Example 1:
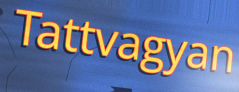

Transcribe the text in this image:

Tattvagyan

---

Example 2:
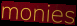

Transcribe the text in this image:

monies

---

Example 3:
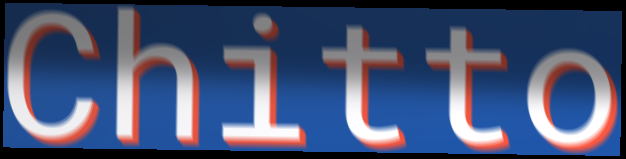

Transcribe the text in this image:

Chitto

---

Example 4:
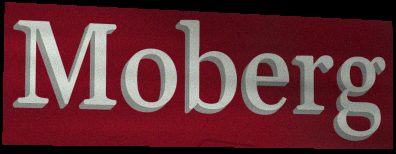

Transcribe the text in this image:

Moberg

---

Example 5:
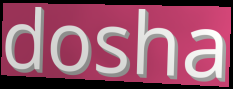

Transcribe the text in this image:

dosha